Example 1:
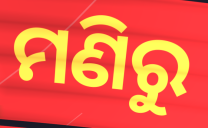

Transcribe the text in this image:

ମଣିରୁ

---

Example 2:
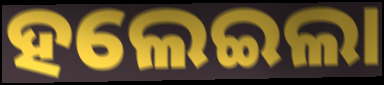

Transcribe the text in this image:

ହଲେଇଲା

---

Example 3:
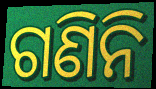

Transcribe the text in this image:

ଗଣିନି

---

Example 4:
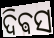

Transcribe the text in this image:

ଦିଵସ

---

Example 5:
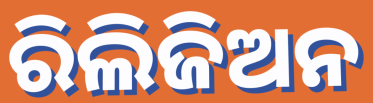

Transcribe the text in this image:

ରିଲିଜିଅନ